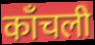
काँचली